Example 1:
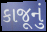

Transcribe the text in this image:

કાજૂનું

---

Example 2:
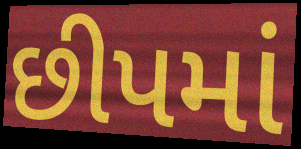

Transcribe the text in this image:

છીપમાં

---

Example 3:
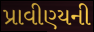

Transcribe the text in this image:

પ્રાવીણ્યની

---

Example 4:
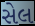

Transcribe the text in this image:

સેલ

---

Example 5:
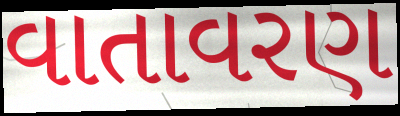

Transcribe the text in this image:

વાતાવરણ